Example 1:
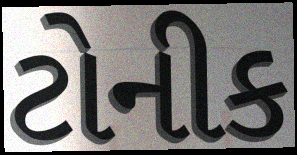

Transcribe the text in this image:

ટોનીક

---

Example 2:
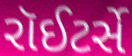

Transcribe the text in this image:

રૉઈટર્સે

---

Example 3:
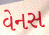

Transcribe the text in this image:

વેનસ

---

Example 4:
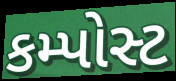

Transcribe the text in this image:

કમ્પોસ્ટ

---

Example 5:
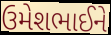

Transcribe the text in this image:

ઉમેશભાઈને